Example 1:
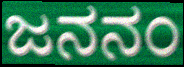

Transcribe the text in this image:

ಜನನಂ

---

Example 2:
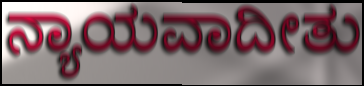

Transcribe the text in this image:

ನ್ಯಾಯವಾದೀತು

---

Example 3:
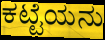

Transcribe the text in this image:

ಕಟ್ಟೆಯನು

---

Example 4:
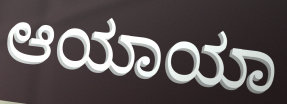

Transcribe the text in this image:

ಆಯಾಯಾ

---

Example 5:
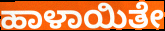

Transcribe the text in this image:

ಹಾಳಾಯಿತೇ